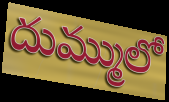
దుమ్ములో